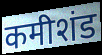
कमीशंड